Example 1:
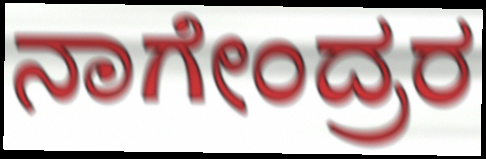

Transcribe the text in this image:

ನಾಗೇಂದ್ರರ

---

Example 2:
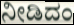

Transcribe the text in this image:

ನೀಡಿದಂ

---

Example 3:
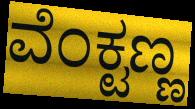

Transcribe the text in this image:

ವೆಂಕ್ಟಣ್ಣ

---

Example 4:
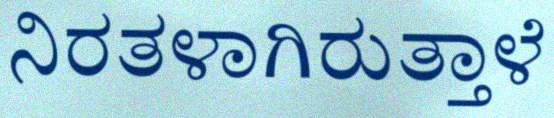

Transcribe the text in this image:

ನಿರತಳಾಗಿರುತ್ತಾಳೆ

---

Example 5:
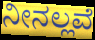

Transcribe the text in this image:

ನೀನಲ್ಲವೆ